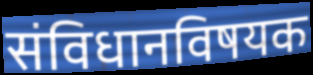
संविधानविषयक